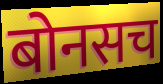
बोनसच